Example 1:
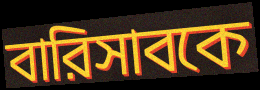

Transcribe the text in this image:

বারিসাবকে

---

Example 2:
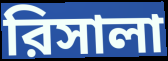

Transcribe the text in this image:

রিসালা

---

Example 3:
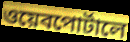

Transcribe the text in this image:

ওয়েবপোর্টালে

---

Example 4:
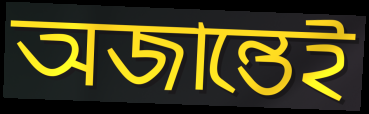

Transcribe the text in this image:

অজান্তেই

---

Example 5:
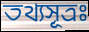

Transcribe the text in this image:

তথ্যসূত্রঃ